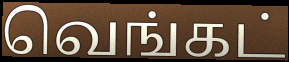
வெங்கட்